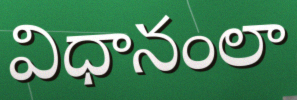
విధానంలా